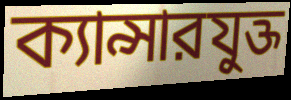
ক্যান্সারযুক্ত